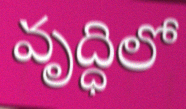
వృద్ధిలో